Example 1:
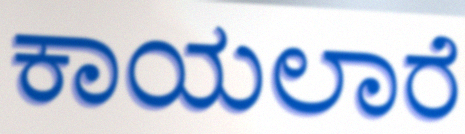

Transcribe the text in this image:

ಕಾಯಲಾರೆ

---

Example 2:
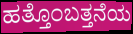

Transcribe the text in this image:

ಹತ್ತೊಂಬತ್ತನೆಯ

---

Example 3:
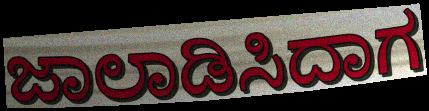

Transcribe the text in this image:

ಜಾಲಾಡಿಸಿದಾಗ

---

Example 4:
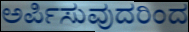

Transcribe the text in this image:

ಅರ್ಪಿಸುವುದರಿಂದ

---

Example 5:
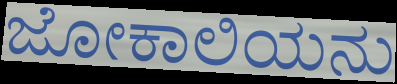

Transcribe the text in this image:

ಜೋಕಾಲಿಯನು